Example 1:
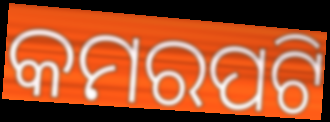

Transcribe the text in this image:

କମରପଟି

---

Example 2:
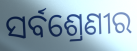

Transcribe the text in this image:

ସର୍ବଶ୍ରେଣୀର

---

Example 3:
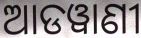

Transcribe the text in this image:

ଆଡୱାଣୀ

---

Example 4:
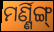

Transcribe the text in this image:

ମର୍ଣ୍ଣିଙ୍ଗ୍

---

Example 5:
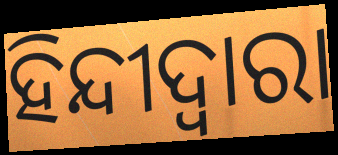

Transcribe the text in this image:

ହିନ୍ଦୀଦ୍ଵାରା